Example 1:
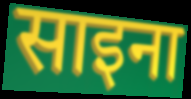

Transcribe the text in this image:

साइना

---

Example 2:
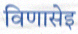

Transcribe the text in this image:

विणासेइ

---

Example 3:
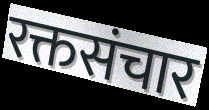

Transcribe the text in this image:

रक्तसंचार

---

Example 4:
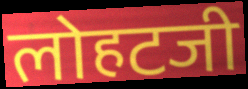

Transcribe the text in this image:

लोहटजी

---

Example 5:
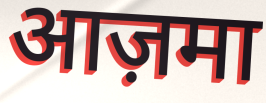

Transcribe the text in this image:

आज़मा